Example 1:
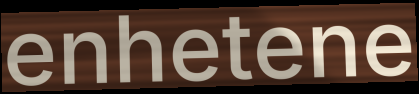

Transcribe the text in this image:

enhetene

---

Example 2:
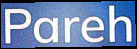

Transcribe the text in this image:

Pareh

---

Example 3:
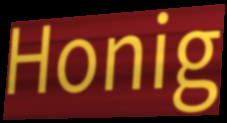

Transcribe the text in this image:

Honig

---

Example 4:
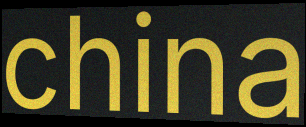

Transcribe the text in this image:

china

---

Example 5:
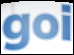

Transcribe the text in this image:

goi